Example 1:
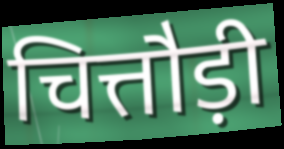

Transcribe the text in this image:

चित्तौड़ी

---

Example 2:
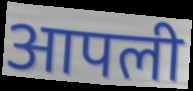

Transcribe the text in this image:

आपली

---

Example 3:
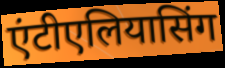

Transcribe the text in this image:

एंटीएलियासिंग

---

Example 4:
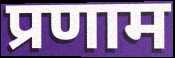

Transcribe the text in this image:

प्रणाम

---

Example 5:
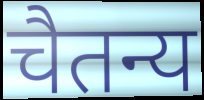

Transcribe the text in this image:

चैतन्य